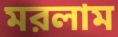
মরলাম